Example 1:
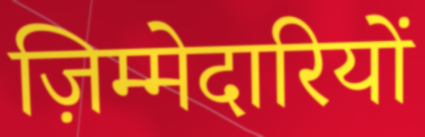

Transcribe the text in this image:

ज़िम्मेदारियों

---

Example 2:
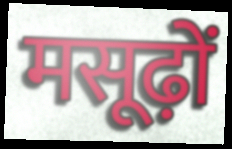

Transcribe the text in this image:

मसूढ़ों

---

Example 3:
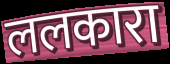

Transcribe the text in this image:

ललकारा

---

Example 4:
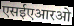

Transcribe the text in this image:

एसईएआरओ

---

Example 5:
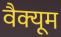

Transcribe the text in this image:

वैक्‍यूम